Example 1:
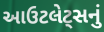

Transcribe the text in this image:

આઉટલેટ્સનું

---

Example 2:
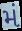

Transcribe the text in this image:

મં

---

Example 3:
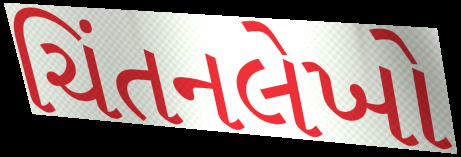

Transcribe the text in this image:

ચિંતનલેખો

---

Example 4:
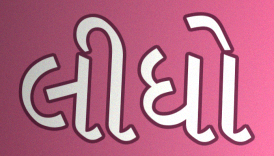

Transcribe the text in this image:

લીધો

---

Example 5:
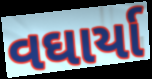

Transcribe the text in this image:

વઘાર્યા